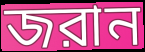
জরান